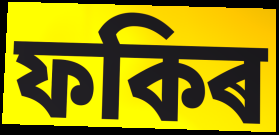
ফকিৰ